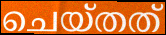
ചെയ്തത്